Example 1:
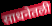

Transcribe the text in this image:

साधनेतली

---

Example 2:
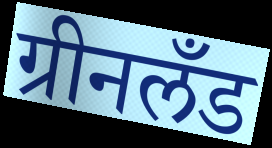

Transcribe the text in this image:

ग्रीनलँड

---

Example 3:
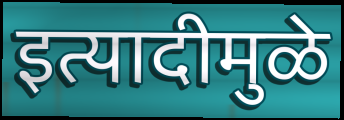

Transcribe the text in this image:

इत्यादीमुळे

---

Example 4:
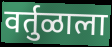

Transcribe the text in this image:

वर्तुळाला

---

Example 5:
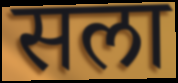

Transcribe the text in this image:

सला